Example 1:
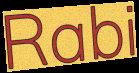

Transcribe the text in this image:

Rabi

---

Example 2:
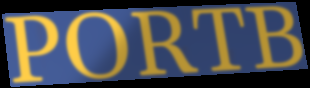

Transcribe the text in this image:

PORTB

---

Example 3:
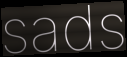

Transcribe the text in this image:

sads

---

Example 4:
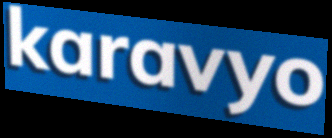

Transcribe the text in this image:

karavyo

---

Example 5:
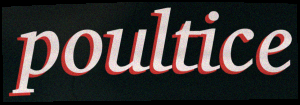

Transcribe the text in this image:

poultice